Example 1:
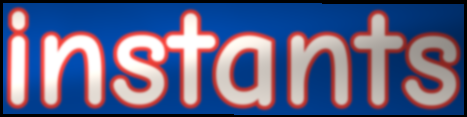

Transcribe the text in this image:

instants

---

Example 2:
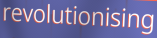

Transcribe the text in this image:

revolutionising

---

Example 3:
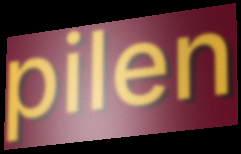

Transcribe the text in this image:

pilen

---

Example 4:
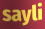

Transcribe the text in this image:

sayli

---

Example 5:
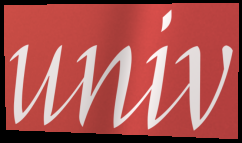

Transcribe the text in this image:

univ